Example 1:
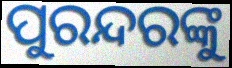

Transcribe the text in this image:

ପୁରନ୍ଦରଙ୍କୁ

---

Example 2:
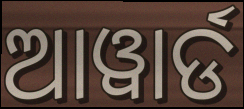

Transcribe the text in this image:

ଆୱାର୍ଡ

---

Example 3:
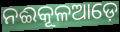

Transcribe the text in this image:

ନଈକୂଳଆଡ଼େ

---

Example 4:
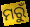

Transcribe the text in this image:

ମରୁଁ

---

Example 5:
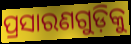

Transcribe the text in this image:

ପ୍ରସାରଣଗୁଡ଼ିକୁ